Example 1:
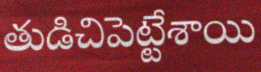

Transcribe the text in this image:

తుడిచిపెట్టేశాయి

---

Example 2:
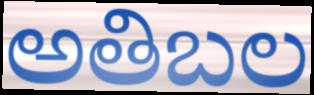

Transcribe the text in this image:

అతిబల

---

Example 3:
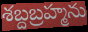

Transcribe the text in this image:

శబ్దబ్రహ్మను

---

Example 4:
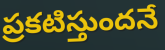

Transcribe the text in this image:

ప్రకటిస్తుందనే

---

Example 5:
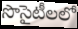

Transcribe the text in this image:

సొసైటీలలో